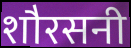
शौरसनी